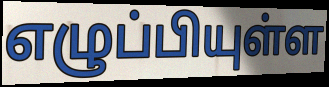
எழுப்பியுள்ள